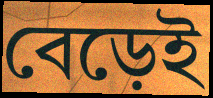
বেড়েই